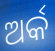
ଅର୍କ